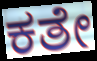
ಕತೇ